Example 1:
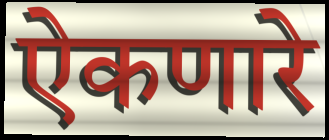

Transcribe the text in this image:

ऐकणारे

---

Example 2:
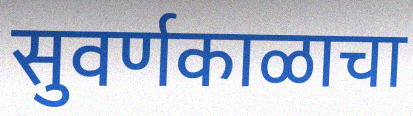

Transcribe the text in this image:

सुवर्णकाळाचा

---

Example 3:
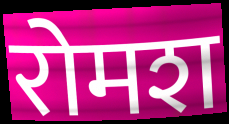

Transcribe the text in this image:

रोमश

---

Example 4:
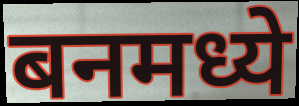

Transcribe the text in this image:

बनमध्ये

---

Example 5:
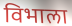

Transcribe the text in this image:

विभाला